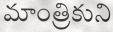
మాంత్రికుని